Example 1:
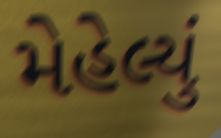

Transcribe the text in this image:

મેહેલ્યું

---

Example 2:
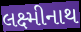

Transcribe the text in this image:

લક્ષ્મીનાથ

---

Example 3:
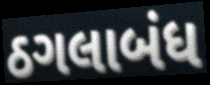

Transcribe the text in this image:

ઠગલાબંધ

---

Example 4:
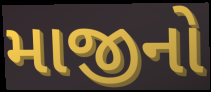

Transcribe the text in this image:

માજીનો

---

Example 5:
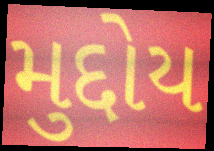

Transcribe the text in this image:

મુદ્દોય